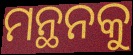
ମନ୍ଥନକୁ